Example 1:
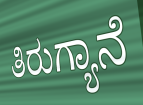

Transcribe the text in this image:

ತಿರುಗ್ಯಾನೆ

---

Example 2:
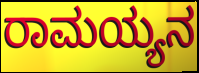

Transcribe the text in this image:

ರಾಮಯ್ಯನ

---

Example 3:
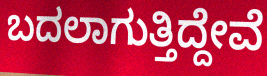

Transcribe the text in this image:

ಬದಲಾಗುತ್ತಿದ್ದೇವೆ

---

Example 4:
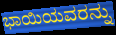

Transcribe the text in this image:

ಭಾಯಿಯವರನ್ನು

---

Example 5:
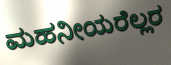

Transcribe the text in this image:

ಮಹನೀಯರೆಲ್ಲರ